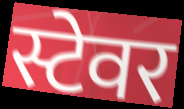
स्टेवर